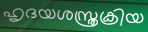
ഹൃദയശസ്ത്രക്രിയ